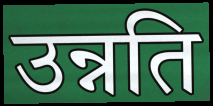
उन्नति